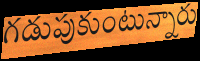
గడుపుకుంటున్నారు